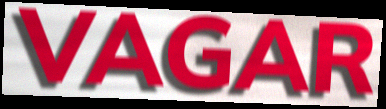
VAGAR